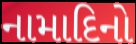
નામાદિનો